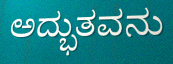
ಅದ್ಭುತವನು